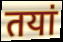
तयां